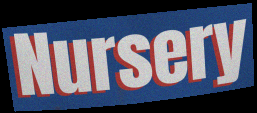
Nursery